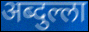
अब्दुल्ला